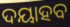
ଦୟାହବ